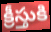
క్రీస్తుకి